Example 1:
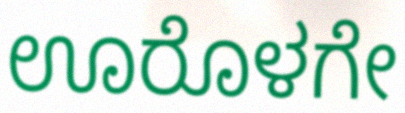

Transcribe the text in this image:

ಊರೊಳಗೇ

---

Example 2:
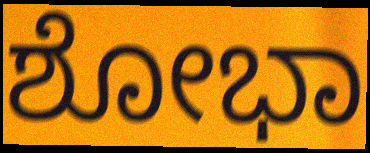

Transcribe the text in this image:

ಶೋಭಾ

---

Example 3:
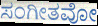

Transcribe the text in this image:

ಸಂಗೀತವೋ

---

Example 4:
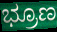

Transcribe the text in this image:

ಭ್ರೂಣ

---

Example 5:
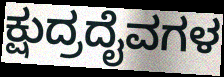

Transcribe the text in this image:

ಕ್ಷುದ್ರದೈವಗಳ